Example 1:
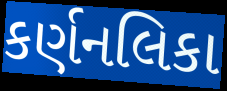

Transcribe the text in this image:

કર્ણનલિકા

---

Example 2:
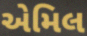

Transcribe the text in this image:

એમિલ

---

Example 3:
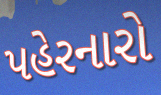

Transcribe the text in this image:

પહેરનારો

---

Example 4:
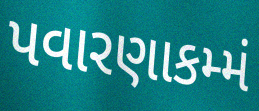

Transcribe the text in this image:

પવારણાકમ્મં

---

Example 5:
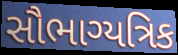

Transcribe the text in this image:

સૌભાગ્યત્રિક